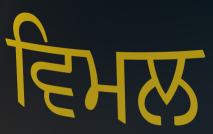
ਵਿਮਲ